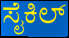
ಸೈಕಿಲ್